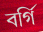
বর্গি